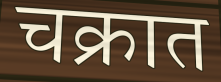
चक्रात